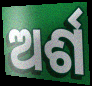
ଅର୍ଶ